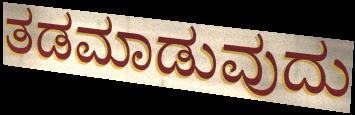
ತಡಮಾಡುವುದು